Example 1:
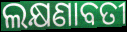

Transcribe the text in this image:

ଲକ୍ଷଣାବତୀ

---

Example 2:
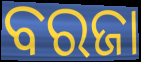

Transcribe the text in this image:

ବରଜା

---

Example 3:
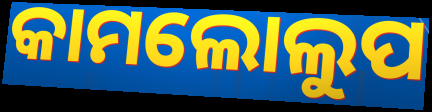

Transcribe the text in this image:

କାମଲୋଲୁପ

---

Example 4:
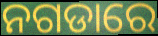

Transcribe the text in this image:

ନଗଡାରେ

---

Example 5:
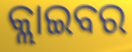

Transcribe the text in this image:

କ୍ଲାଇବର